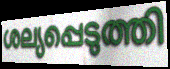
ശല്യപ്പെടുത്തി